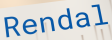
Rendal